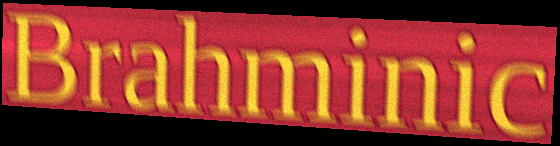
Brahminic